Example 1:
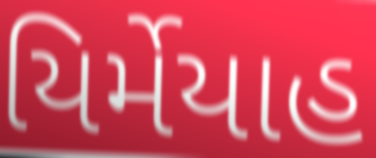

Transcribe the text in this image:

યિર્મેયાહ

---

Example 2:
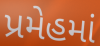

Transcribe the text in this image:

પ્રમેહમાં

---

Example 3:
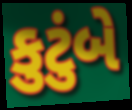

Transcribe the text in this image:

કુટુંબે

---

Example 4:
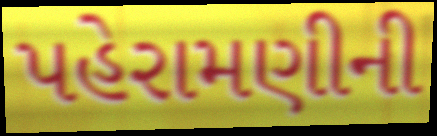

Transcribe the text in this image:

પહેરામણીની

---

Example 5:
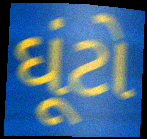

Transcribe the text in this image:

ઘૂંટો